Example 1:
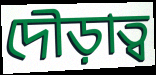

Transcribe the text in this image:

দৌড়াত্ব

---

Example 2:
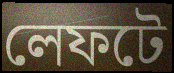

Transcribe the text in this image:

লেফটে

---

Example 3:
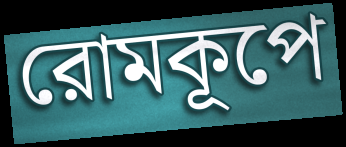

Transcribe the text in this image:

রোমকূপে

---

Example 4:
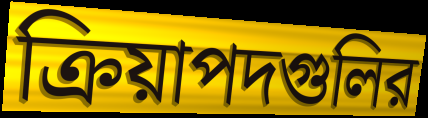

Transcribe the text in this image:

ক্রিয়াপদগুলির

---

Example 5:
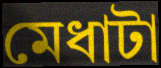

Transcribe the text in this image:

মেধাটা